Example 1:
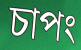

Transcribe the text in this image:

চাপং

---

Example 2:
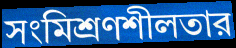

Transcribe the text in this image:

সংমিশ্রণশীলতার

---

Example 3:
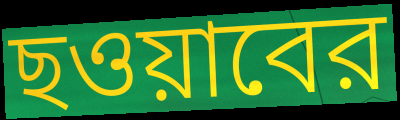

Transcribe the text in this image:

ছওয়াবের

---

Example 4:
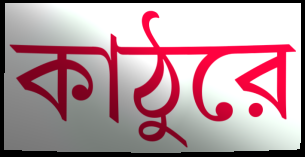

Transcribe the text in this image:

কাঠুরে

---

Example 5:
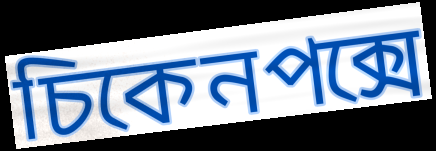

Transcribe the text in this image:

চিকেনপক্সে